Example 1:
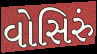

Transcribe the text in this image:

વોસિરું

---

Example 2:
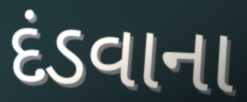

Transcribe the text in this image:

દંડવાના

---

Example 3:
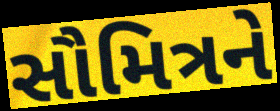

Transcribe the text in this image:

સૌમિત્રને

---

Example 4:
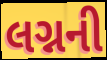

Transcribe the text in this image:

લગ્નની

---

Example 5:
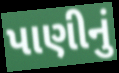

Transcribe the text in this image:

પાણીનું